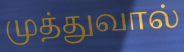
முத்துவால்